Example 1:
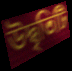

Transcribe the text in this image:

উদ্বৃতিটি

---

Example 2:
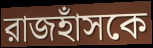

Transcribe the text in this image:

রাজহাঁসকে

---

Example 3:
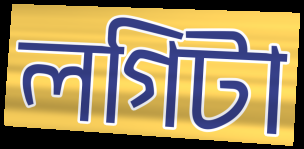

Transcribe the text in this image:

লগিটা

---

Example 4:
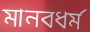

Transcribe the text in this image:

মানবধর্ম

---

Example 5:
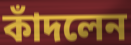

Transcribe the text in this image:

কাঁদলেন